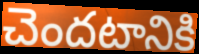
చెందటానికి